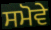
ਸਮੋਵੇ